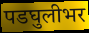
पडघुलीभर